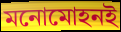
মনোমোহনই